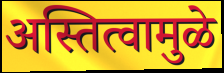
अस्तित्वामुळे